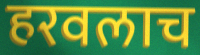
हरवलाच